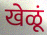
खेळूं